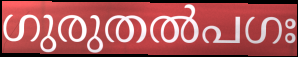
ഗുരുതൽപഗഃ